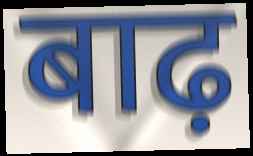
बाढ़